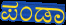
ಪಂಡಾ